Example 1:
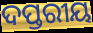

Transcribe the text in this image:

ଦପ୍ତରୀୟ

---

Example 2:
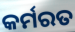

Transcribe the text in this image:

କର୍ମରତ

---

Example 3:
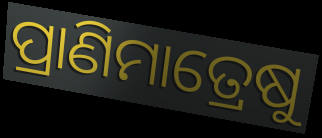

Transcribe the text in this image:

ପ୍ରାଣିମାତ୍ରେଷୁ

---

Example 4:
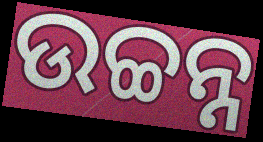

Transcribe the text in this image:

ଉଚ୍ଚନ୍ନ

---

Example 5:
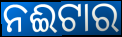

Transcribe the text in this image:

ନଈଟାର